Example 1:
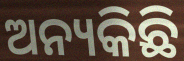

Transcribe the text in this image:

ଅନ୍ୟକିଛି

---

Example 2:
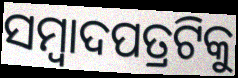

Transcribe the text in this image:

ସମ୍ବାଦପତ୍ରଟିକୁ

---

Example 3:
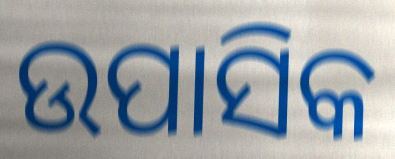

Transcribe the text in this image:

ଉପାସିକ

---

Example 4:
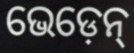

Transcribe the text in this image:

ଭେଡ଼େନ୍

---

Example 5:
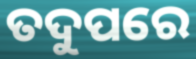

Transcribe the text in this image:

ତଦୁପରେ